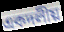
একদলীয়